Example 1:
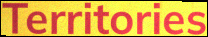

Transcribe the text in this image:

Territories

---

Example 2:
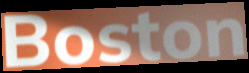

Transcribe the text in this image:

Boston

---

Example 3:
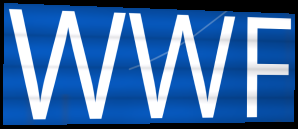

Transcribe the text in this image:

WWF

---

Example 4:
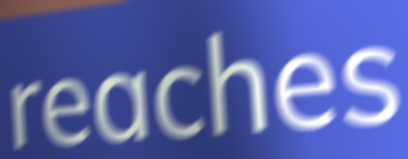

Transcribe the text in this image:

reaches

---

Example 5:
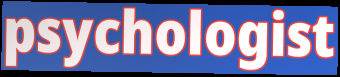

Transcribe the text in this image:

psychologist